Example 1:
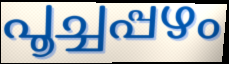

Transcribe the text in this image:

പൂച്ചപ്പഴം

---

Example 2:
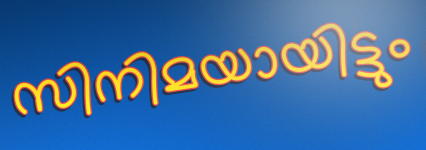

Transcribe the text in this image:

സിനിമയായിട്ടും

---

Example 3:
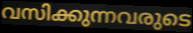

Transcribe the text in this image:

വസിക്കുന്നവരുടെ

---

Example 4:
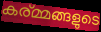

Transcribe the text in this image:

കര്മ്മങ്ങളുടെ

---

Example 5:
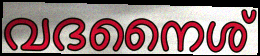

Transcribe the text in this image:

വദനൈശ്